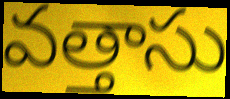
వత్తాసు